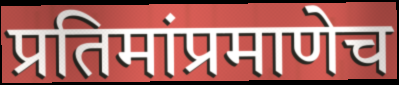
प्रतिमांप्रमाणेच